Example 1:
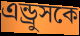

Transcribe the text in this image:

এন্ড্রুসকে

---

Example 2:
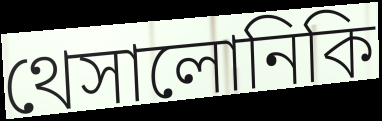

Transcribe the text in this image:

থেসালোনিকি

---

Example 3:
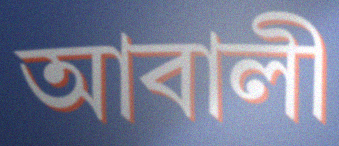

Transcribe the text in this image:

আবালী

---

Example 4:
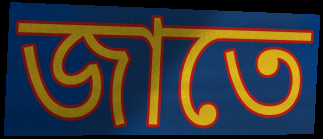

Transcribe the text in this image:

জাতে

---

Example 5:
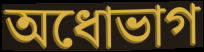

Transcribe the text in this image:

অধোভাগ